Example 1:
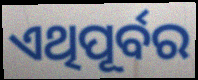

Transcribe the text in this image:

ଏଥିପୂର୍ବର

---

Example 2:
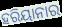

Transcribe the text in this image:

ହରିୟାନାର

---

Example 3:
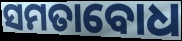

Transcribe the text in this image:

ସମତାବୋଧ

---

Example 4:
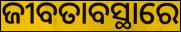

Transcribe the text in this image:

ଜୀବତାବସ୍ଥାରେ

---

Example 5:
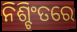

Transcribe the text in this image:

ନିଶ୍ଚିଂତରେ